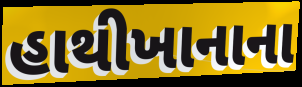
હાથીખાનાના